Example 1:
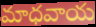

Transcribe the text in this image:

మాధవాయ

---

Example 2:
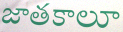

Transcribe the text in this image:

జాతకాలూ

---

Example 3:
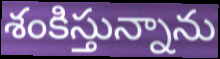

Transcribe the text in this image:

శంకిస్తున్నాను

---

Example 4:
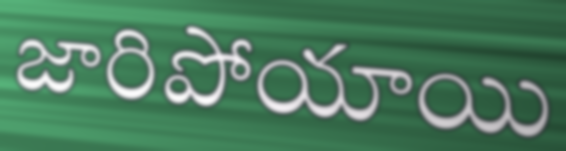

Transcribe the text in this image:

జారిపోయాయి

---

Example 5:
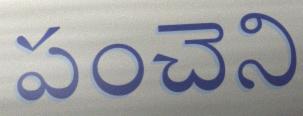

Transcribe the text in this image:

పంచెని